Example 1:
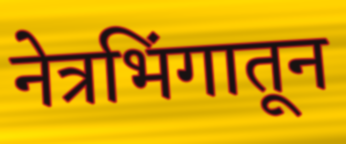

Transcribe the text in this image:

नेत्रभिंगातून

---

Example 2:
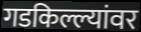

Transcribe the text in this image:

गडकिल्ल्यांवर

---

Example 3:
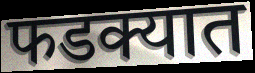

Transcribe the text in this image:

फडक्‍यात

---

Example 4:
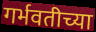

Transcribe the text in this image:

गर्भवतीच्या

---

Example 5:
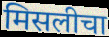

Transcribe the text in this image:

मिसलीचा